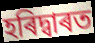
হৰিদ্বাৰত